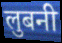
लुबनी